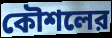
কৌশলের